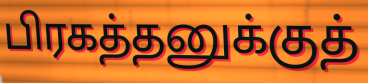
பிரகத்தனுக்குத்